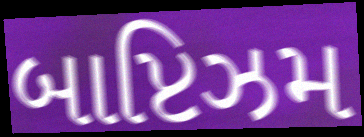
બાપ્ટિઝમ